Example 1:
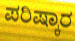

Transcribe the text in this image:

ಪರಿಷ್ಕಾರ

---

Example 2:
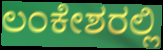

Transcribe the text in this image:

ಲಂಕೇಶರಲ್ಲಿ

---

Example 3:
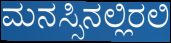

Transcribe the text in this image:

ಮನಸ್ಸಿನಲ್ಲಿರಲಿ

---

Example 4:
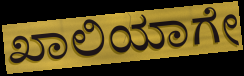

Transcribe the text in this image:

ಖಾಲಿಯಾಗೇ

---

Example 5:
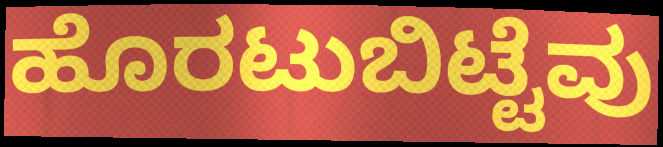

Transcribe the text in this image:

ಹೊರಟುಬಿಟ್ಟೆವು